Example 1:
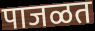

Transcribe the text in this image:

पाजळत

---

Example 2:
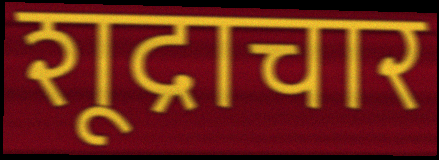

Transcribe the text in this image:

शूद्राचार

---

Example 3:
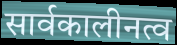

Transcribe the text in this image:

सार्वकालीनत्व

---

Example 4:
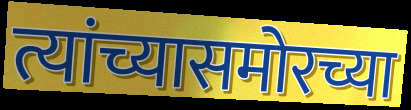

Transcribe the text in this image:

त्यांच्यासमोरच्या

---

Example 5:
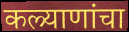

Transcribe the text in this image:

कल्याणांचा